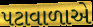
પટાવાળાએ